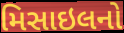
મિસાઇલનો